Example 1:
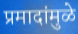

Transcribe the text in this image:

प्रमादांमुळे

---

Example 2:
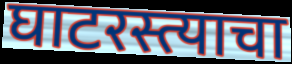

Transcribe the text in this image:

घाटरस्त्याचा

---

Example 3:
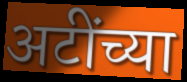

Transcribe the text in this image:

अटींच्या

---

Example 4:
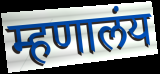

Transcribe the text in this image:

म्हणालंय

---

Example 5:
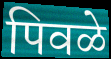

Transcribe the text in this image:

पिवळे